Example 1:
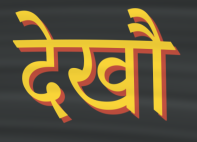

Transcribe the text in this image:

देखौ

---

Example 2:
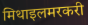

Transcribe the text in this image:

मिथाइलमरकरी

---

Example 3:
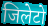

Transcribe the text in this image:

जिलेटो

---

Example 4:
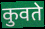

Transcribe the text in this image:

कुवते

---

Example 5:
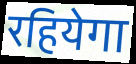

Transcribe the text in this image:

रहियेगा